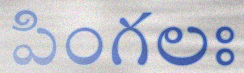
పింగలః